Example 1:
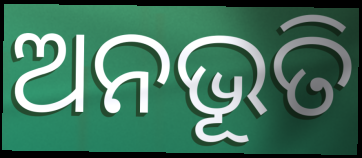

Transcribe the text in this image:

ଅନଭୂତି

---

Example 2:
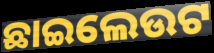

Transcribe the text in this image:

ଛାଇଲେଉଟ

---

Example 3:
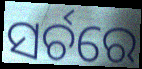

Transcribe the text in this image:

ସର୍ଚରେ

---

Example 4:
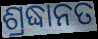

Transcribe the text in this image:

ଶ୍ରଦ୍ଧାନତ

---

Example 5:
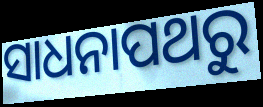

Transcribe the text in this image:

ସାଧନାପଥରୁ